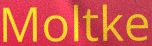
Moltke